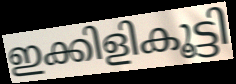
ഇക്കിളികൂട്ടി